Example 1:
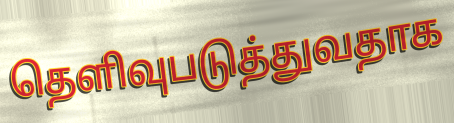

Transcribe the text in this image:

தெளிவுபடுத்துவதாக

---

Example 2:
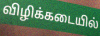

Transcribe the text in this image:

விழிக்கடையில்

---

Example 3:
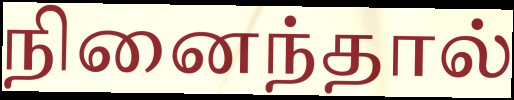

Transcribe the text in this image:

நினைந்தால்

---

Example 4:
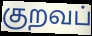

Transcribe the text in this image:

குறவப்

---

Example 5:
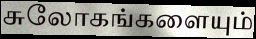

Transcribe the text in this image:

சுலோகங்களையும்